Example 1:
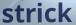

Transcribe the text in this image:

strick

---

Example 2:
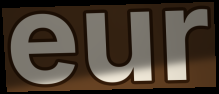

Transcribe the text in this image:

eur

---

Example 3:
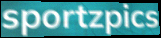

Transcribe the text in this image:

sportzpics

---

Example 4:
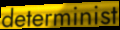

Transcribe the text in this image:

determinist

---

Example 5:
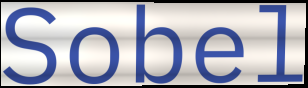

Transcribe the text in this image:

Sobel